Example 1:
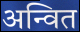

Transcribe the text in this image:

अन्वित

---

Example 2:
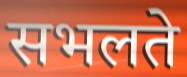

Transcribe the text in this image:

सभलते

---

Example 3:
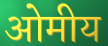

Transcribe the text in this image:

ओमीय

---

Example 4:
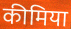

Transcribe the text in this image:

कीमिया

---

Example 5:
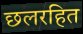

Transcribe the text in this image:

छलरहित